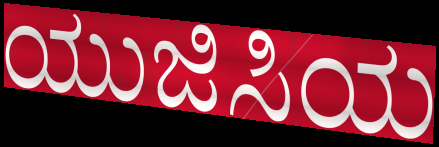
ಯುಜಿಸಿಯ